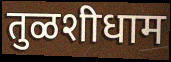
तुळशीधाम